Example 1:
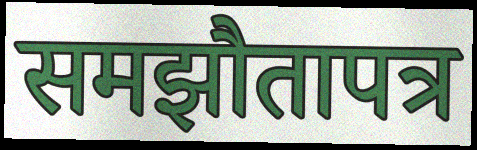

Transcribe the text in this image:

समझौतापत्र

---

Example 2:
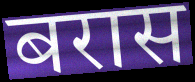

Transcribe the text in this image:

बरास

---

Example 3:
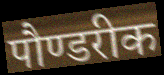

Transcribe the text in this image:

पौण्डरीक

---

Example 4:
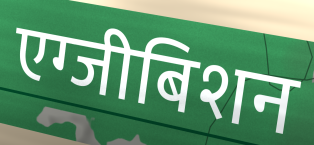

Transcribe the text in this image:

एग्जीबिशन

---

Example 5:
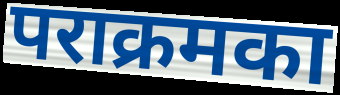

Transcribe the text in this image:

पराक्रमका